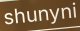
shunyni